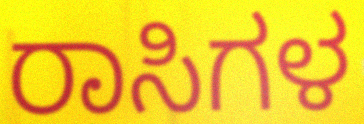
ರಾಸಿಗಳ